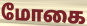
மோகை